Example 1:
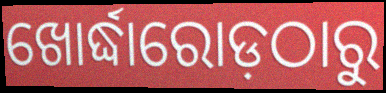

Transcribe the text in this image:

ଖୋର୍ଦ୍ଧାରୋଡ଼ଠାରୁ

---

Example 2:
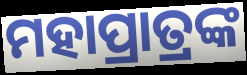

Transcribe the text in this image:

ମହାପ୍ରାତ୍ରଙ୍କ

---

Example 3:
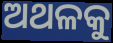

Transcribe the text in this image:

ଅଥଳକୁ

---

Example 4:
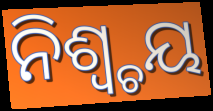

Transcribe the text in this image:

ନିଶ୍ୱ୍ଚୟ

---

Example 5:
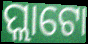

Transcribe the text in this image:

ପ୍ଲାଟୋ